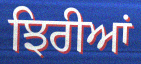
ਝਿਰੀਆਂ